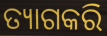
ତ୍ଯାଗକରି